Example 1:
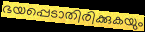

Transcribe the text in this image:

ഭയപ്പെടാതിരിക്കുകയും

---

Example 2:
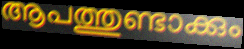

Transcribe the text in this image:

ആപത്തുണ്ടാക്കും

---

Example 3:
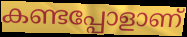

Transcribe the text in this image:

കണ്ടപ്പോളാണ്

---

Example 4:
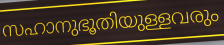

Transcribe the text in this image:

സഹാനുഭൂതിയുള്ളവരും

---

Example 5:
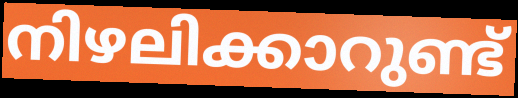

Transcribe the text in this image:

നിഴലിക്കാറുണ്ട്